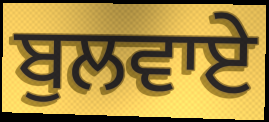
ਬੁਲਵਾਏ